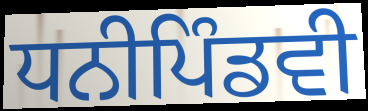
ਧਨੀਪਿੰਡਵੀ